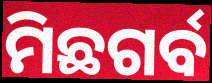
ମିଛଗର୍ବ